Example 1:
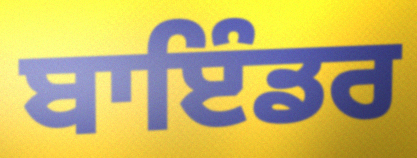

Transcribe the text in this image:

ਬਾਇੰਡਰ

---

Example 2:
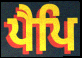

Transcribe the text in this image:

ਪੈਪਿ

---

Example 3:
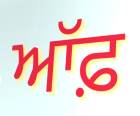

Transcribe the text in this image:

ਆੱਫ਼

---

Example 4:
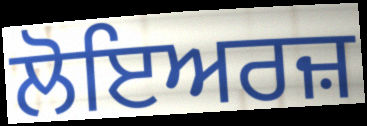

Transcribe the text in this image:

ਲੋਇਅਰਜ਼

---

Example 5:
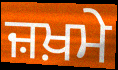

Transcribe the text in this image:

ਜ਼ਖ਼ਮੇ